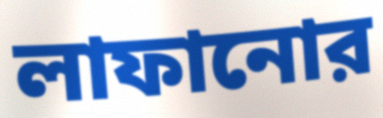
লাফানোর